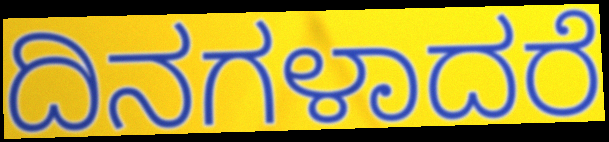
ದಿನಗಳಾದರೆ